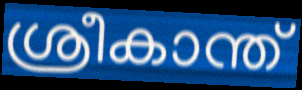
ശ്രീകാന്ത്